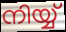
നിയ്യ്